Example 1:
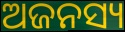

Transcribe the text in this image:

ଅଜନସ୍ୟ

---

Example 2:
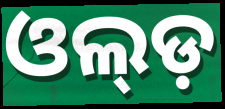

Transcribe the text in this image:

ଓଲ୍ଡ଼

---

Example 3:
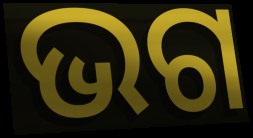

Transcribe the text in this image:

ଭଗ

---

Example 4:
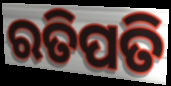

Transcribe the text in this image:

ରତିପତି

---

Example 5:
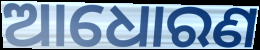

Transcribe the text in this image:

ଆଧୋରଣ